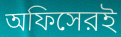
অফিসেরই